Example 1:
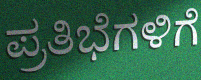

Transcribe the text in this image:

ಪ್ರತಿಭೆಗಳಿಗೆ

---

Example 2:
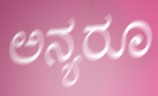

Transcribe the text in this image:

ಅನ್ಯರೂ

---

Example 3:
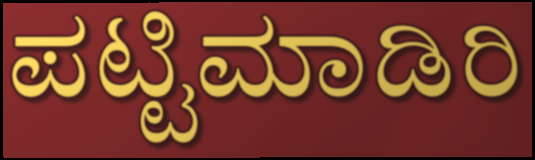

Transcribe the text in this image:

ಪಟ್ಟಿಮಾಡಿರಿ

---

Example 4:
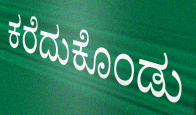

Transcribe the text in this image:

ಕರೆದುಕೊಂಡು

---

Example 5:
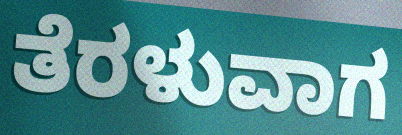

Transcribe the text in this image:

ತೆರಳುವಾಗ